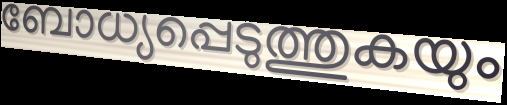
ബോധ്യപ്പെടുത്തുകയും